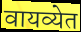
वायव्येत